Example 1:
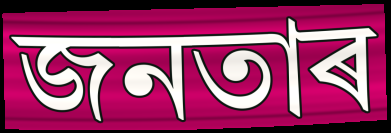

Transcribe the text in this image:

জনতাৰ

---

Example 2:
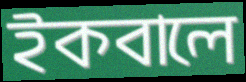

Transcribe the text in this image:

ইকবালে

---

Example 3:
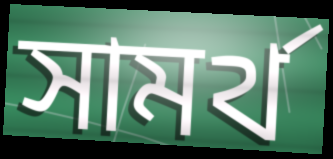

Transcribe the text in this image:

সামৰ্থ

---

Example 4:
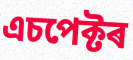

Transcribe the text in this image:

এচপেক্টৰ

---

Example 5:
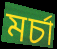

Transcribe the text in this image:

মৰ্চা